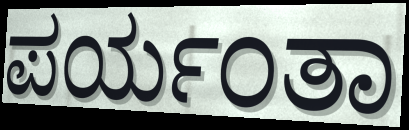
ಪರ್ಯಂತಾ